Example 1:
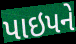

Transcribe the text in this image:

પાઇપને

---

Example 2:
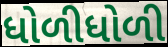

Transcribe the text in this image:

ધોળીધોળી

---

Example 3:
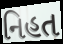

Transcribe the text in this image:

નિહત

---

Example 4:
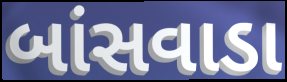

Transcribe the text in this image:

બાંસવાડા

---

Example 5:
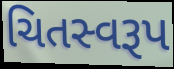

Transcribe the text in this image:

ચિતસ્વરૂપ